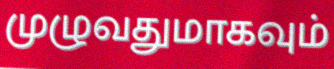
முழுவதுமாகவும்